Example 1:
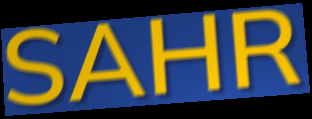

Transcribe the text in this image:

SAHR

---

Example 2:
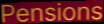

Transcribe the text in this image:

Pensions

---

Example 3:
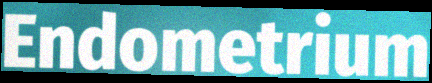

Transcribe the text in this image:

Endometrium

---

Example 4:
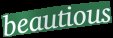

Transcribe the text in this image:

beautious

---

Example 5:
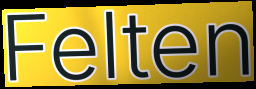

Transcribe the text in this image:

Felten